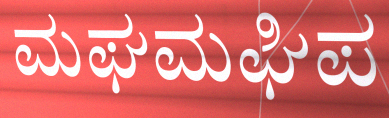
ಮಘಮಘಿಪ